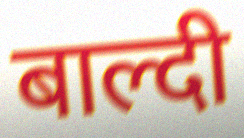
बाल्दी